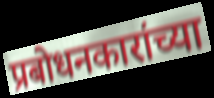
प्रबोधनकारांच्या